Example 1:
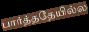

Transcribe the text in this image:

பார்த்ததேயில்ல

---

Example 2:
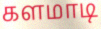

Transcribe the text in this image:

களமாடி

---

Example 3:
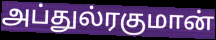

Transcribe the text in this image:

அப்துல்ரகுமான்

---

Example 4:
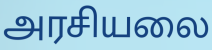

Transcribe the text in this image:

அரசியலை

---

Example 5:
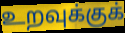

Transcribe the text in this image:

உறவுக்குக்